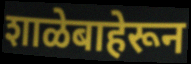
शाळेबाहेरून